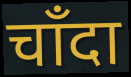
चाँदा